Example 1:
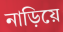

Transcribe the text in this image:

নাড়িয়ে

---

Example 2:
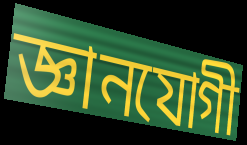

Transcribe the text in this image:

জ্ঞানযোগী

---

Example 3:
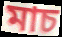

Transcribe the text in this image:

মাচ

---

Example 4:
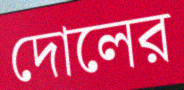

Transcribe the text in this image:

দোলের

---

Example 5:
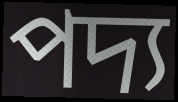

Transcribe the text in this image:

পদ্য